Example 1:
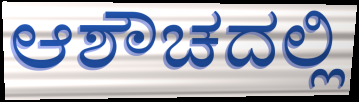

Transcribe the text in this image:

ಆಶೌಚದಲ್ಲಿ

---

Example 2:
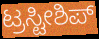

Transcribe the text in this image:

ಟ್ರಸ್ಟೀಶಿಪ್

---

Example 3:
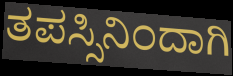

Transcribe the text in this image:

ತಪಸ್ಸಿನಿಂದಾಗಿ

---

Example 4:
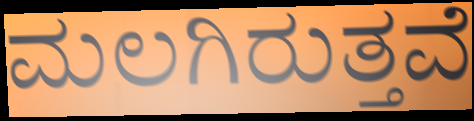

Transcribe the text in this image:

ಮಲಗಿರುತ್ತವೆ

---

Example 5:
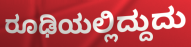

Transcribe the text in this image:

ರೂಢಿಯಲ್ಲಿದ್ದುದು